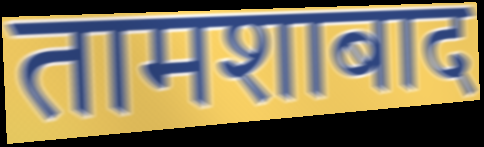
तामशाबाद